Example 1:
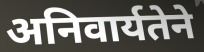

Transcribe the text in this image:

अनिवार्यतेने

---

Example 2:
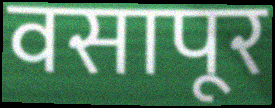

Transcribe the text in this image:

वसापूर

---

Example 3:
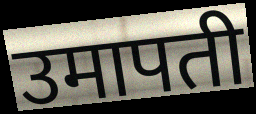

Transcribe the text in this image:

उमापती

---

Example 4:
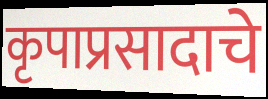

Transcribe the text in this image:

कृपाप्रसादाचे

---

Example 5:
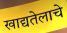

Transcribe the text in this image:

खाद्यतेलाचे